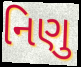
નિણુ